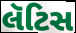
લૅટિસ